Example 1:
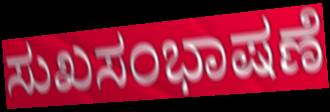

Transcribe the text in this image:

ಸುಖಸಂಭಾಷಣೆ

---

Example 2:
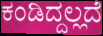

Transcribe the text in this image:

ಕಂಡಿದ್ದಲ್ಲದೆ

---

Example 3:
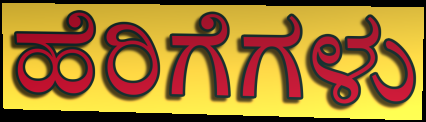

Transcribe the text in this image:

ಹೆರಿಗೆಗಳು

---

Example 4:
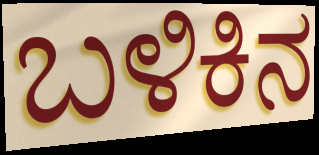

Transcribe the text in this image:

ಬಳಿಕಿನ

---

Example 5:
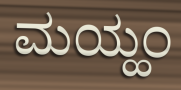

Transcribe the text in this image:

ಮಯ್ಹಂ